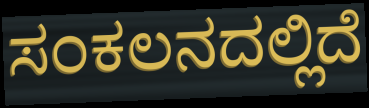
ಸಂಕಲನದಲ್ಲಿದೆ